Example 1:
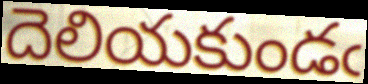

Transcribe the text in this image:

దెలియకుండఁ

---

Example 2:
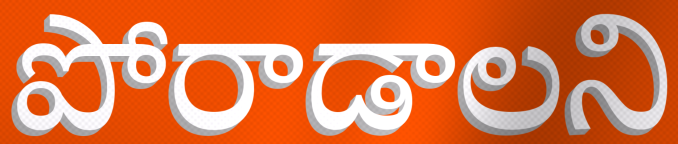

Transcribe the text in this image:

పోరాడాలని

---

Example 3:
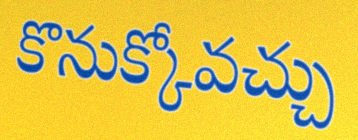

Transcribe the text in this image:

కొనుక్కోవచ్చు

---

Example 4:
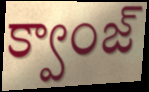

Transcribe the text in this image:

క్వాంజ్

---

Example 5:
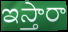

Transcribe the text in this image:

ఇస్తారా